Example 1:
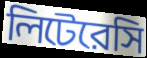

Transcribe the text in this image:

লিটেরেসি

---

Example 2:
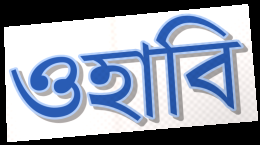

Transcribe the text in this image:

ওহাবি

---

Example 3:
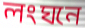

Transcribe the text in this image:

লংঘনে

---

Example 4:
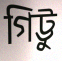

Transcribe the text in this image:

গিট্টু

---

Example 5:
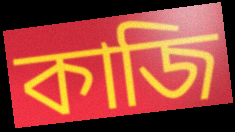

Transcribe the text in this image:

কাজি